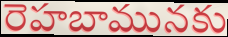
రెహబామునకు